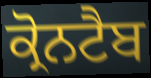
ਕ੍ਰੋਨਟੈਬ